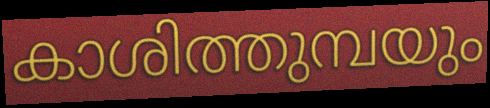
കാശിത്തുമ്പയും